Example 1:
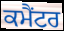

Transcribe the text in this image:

ਕਮੈਂਟਰ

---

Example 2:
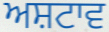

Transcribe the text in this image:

ਅਸ਼ਟਾਵ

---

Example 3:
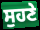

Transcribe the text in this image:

ਸੁਹਣੇ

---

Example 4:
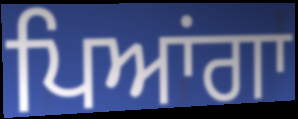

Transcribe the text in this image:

ਪਿਆਂਗਾ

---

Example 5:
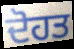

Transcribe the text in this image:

ਦੋਹਤ